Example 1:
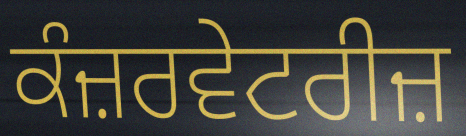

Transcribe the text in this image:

ਕੰਜ਼ਰਵੇਟਰੀਜ਼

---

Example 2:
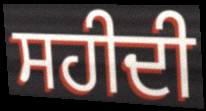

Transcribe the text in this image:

ਸਹੀਦੀ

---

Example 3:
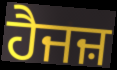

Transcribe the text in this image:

ਹੈਜਜ਼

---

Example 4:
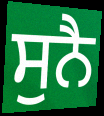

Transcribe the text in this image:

ਸੁਨੈ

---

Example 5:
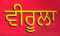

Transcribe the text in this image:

ਵੀਰੂਲਾ